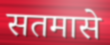
सतमासे